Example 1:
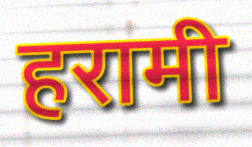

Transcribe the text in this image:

हरामी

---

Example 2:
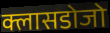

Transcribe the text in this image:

क्लासडोजो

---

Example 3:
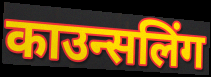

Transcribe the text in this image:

काउन्सलिंग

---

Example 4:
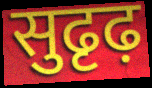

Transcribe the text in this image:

सुढृढ़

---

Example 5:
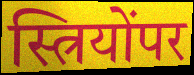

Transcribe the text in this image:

स्त्रियोंपर